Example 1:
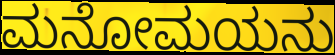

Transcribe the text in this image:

ಮನೋಮಯನು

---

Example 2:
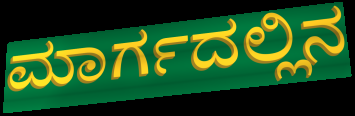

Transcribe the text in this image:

ಮಾರ್ಗದಲ್ಲಿನ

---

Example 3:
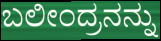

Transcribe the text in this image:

ಬಲೀಂದ್ರನನ್ನು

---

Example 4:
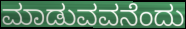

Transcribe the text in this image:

ಮಾಡುವವನೆಂದು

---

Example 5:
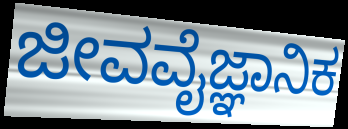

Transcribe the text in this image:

ಜೀವವೈಜ್ಞಾನಿಕ